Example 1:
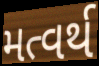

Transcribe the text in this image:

મત્વર્થ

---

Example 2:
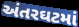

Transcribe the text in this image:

અંતરઘટમાં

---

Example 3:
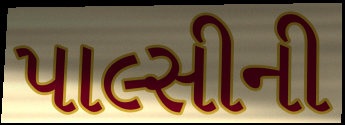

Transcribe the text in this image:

પાલ્સીની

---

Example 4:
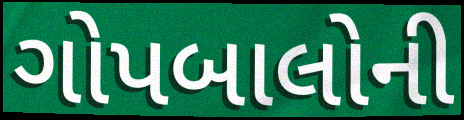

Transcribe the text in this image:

ગોપબાલોની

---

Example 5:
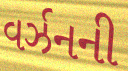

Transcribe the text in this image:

વર્ઝનની